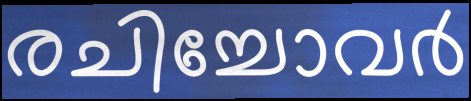
രചിച്ചോവർ